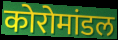
कोरोमांडल